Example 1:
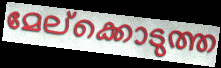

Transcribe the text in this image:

മേല്ക്കൊടുത്ത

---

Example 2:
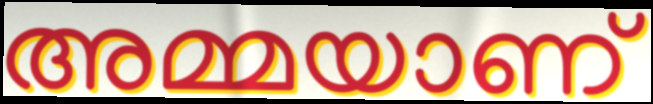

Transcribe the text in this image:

അമ്മയാണ്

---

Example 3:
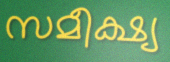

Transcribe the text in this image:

സമീക്ഷ്യ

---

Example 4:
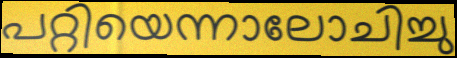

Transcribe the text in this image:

പറ്റിയെന്നാലോചിച്ചു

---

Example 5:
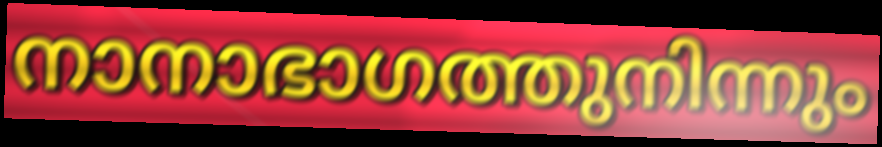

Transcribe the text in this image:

നാനാഭാഗത്തുനിന്നും